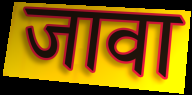
जावा